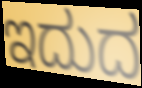
ಇದುದ